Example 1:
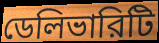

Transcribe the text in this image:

ডেলিভারিটি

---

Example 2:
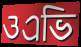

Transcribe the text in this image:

ওএভি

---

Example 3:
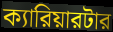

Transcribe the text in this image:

ক্যারিয়ারটার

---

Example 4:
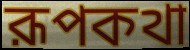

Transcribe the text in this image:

রূপকথা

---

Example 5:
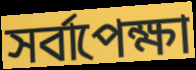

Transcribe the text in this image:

সর্বাপেক্ষা